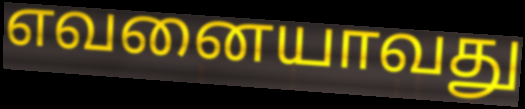
எவனையாவது